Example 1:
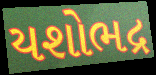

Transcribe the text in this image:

યશોભદ્ર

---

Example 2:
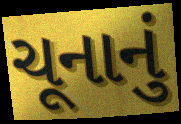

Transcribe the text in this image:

ચૂનાનું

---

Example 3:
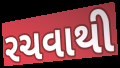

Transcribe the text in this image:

રચવાથી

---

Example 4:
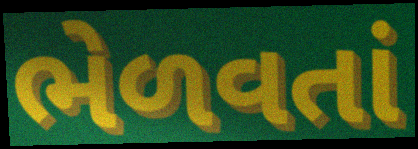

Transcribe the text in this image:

ભેળવતાં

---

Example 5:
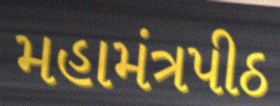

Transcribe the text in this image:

મહામંત્રપીઠ